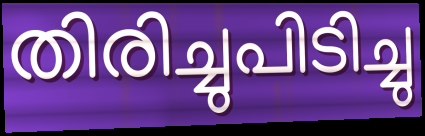
തിരിച്ചുപിടിച്ചു